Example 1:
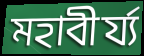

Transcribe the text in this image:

মহাবীর্য্য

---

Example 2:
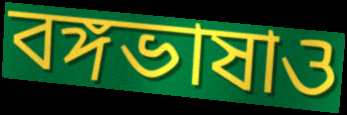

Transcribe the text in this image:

বঙ্গভাষাও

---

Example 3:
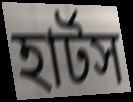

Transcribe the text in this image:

হার্টস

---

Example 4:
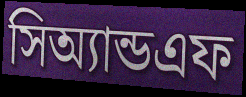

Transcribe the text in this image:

সিঅ্যান্ডএফ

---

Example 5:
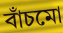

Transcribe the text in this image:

বাঁচমো